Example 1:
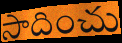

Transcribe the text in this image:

సాదించు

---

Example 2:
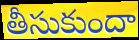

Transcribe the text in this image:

తీసుకుందా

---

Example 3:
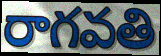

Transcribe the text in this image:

రాగవతి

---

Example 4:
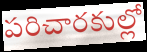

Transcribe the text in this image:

పరిచారకుల్లో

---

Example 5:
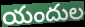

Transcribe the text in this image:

యందుల